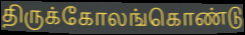
திருக்கோலங்கொண்டு